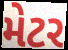
મેટર